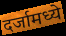
दर्जामध्ये